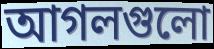
আগলগুলো